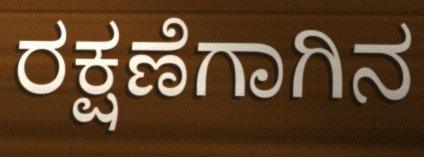
ರಕ್ಷಣೆಗಾಗಿನ